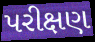
પરીક્ષણ